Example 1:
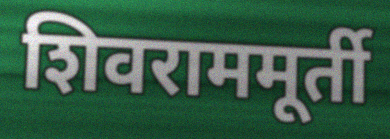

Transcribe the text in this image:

शिवराममूर्ती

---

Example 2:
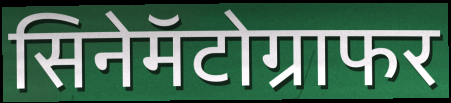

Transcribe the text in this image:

सिनेमॅटोग्राफर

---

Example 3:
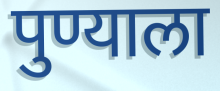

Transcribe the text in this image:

पुण्याला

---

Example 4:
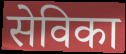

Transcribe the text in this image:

सेविका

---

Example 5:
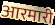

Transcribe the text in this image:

आरमारी